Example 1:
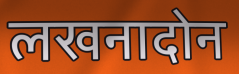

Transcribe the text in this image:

लखनादोन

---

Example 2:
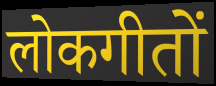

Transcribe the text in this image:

लोकगीतों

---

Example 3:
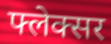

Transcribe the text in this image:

फ्लेक्सर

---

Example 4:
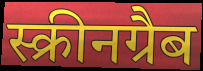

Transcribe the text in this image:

स्क्रीनग्रैब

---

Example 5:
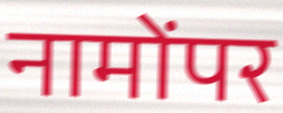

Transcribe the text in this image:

नामोंपर